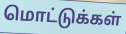
மொட்டுக்கள்